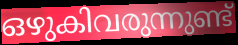
ഒഴുകിവരുന്നുണ്ട്